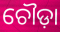
ଚୌଡ଼ା